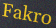
Fakro